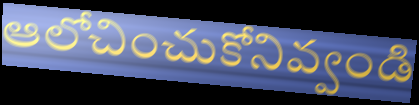
ఆలోచించుకోనివ్వండి